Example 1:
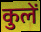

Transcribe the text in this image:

कुलें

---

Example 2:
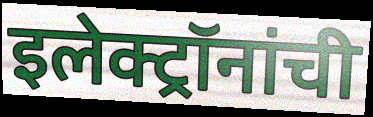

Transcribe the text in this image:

इलेक्ट्रॉनांची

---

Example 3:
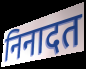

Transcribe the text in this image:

निनादत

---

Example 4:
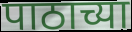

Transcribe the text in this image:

पाठाच्या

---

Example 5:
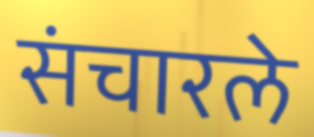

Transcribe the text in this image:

संचारले